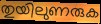
തുയിലുണരുക